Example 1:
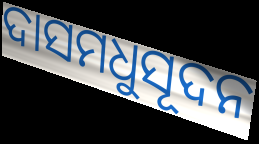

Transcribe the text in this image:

ଦାସମଧୁସୂଦନ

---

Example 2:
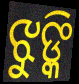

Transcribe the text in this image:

ଝୁଙ୍କି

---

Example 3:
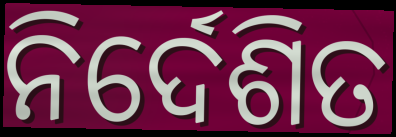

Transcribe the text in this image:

ନିର୍ଦେଶିତ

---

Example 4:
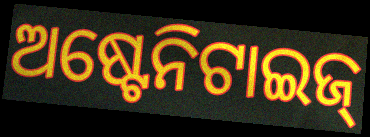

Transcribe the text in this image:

ଅଷ୍ଟେନିଟାଇଜ୍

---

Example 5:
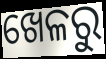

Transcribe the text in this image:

ଖେଳରୁ